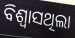
ବିଶ୍ୱାସଥିଲା